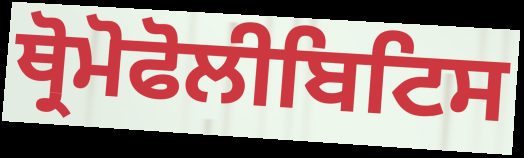
ਥ੍ਰੋਮੋਫੋਲੀਬਿਟਿਸ